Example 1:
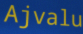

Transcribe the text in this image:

Ajvalu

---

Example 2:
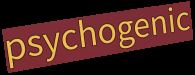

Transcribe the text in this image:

psychogenic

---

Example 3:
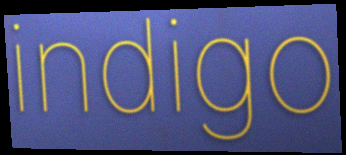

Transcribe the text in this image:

indigo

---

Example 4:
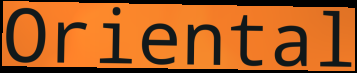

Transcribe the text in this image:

Oriental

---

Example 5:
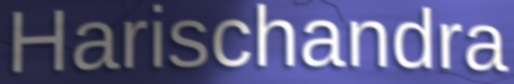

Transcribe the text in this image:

Harischandra